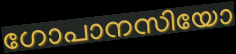
ഗോപാനസിയോ